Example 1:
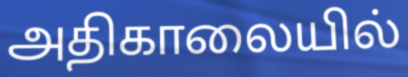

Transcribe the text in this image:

அதிகாலையில்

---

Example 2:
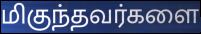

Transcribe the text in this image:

மிகுந்தவர்களை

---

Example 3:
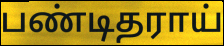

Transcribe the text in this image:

பண்டிதராய்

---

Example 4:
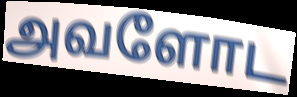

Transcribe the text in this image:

அவளோட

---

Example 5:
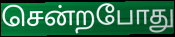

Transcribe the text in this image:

சென்றபோது